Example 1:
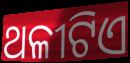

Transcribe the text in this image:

ଥଳୀଟିଏ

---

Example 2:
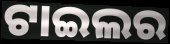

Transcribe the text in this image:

ଟାଇଲର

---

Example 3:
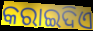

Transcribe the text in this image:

କରାଇଦିଏ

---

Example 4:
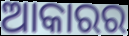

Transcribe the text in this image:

ଆକାରର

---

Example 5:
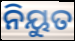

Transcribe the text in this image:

ନିୟୁତ